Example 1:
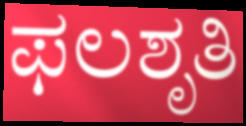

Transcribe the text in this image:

ಫಲಶೃತಿ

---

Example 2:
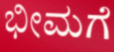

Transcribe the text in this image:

ಭೀಮಗೆ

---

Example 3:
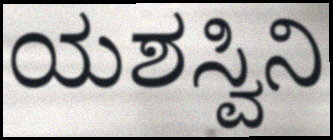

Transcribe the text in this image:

ಯಶಸ್ವಿನಿ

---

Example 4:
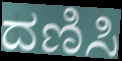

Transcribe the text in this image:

ದಣಿಸಿ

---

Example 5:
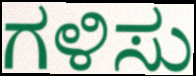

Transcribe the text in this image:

ಗಳಿಸು